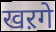
खऱगे